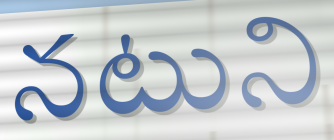
నటుని